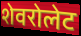
शेवरोलेट